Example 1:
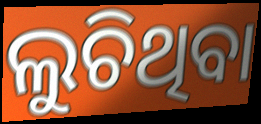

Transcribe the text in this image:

ଲୁଚିଥିବା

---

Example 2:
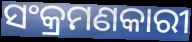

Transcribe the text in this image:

ସଂକ୍ରମଣକାରୀ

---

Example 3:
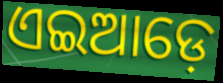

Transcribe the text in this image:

ଏଇଆଡ଼େ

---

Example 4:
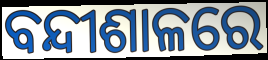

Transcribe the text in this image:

ବନ୍ଦୀଶାଳରେ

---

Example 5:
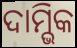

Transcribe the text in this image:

ଦାମ୍ଭିକ